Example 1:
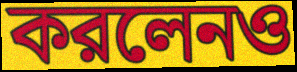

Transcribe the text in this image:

করলেনও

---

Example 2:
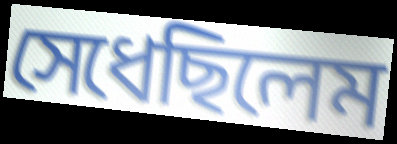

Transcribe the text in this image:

সেধেছিলেম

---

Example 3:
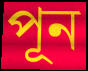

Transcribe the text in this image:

পূন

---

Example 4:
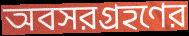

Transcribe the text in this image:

অবসরগ্রহণের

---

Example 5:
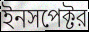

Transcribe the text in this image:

ইনসপেক্টর